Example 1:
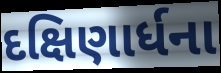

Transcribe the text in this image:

દક્ષિણાર્ધના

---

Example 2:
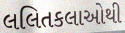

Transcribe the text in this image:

લલિતકલાઓથી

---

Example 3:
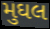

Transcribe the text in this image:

મુઘલ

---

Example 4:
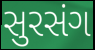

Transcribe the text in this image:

સુરસંગ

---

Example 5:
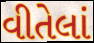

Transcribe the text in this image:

વીતેલાં